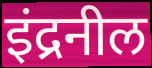
इंद्रनील